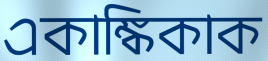
একাঙ্কিকাক